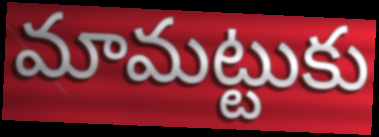
మామట్టుకు